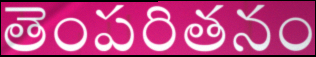
తెంపరితనం